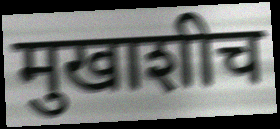
मुखाशीच